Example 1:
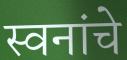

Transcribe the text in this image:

स्वनांचे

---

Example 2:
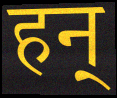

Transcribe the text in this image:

हन्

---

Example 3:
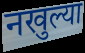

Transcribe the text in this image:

नखुल्या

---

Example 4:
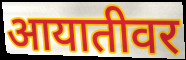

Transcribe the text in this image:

आयातीवर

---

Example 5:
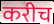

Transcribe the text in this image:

करीच